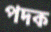
পদক